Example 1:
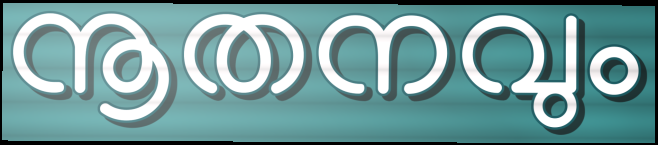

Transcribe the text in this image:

നൂതനവും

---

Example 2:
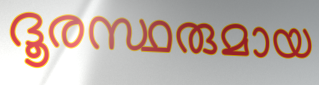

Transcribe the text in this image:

ദൂരസ്ഥരുമായ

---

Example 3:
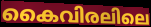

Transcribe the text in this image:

കൈവിരലിലെ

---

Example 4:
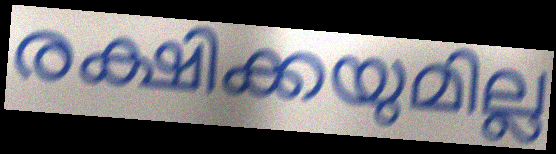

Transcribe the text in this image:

രക്ഷിക്കയുമില്ല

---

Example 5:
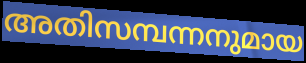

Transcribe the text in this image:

അതിസമ്പന്നനുമായ